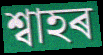
শ্বাহৰ